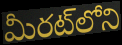
మీరట్‌లోని